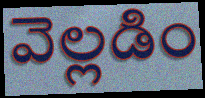
వెల్లడిం